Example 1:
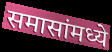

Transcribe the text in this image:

समासांमध्ये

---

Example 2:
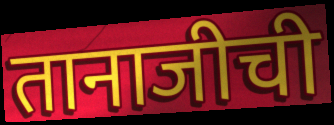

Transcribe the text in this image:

तानाजीची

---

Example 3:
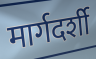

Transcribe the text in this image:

मार्गदर्शी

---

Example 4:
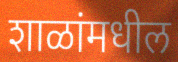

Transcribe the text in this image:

शाळांमधील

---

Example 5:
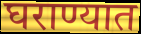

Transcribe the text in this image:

घराण्यात